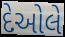
દેઓલે